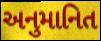
અનુમાનિત